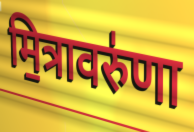
मि॒त्रावरु॑णा